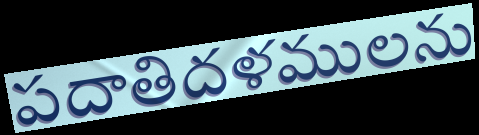
పదాతిదళములను